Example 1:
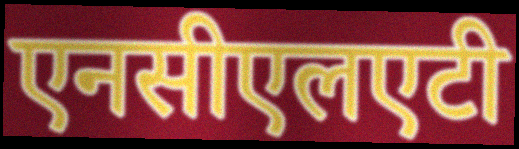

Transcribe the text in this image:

एनसीएलएटी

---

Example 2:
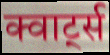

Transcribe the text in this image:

क्वार्ट्स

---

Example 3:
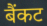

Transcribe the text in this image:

बैंकट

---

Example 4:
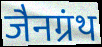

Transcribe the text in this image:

जैनग्रंथ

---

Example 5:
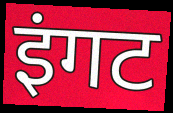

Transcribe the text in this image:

इंगट